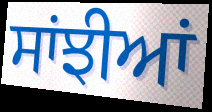
ਸਾਂਝੀਆਂ